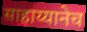
साहाय्यानेच